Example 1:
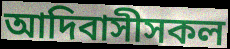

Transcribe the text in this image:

আদিবাসীসকল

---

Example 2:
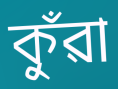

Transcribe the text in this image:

কুঁৱা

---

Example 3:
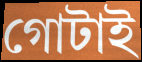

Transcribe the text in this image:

গোটাই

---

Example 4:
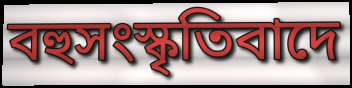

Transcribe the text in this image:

বহুসংস্কৃতিবাদে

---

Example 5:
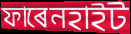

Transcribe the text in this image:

ফাৰেনহাইট